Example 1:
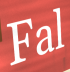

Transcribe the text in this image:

Fal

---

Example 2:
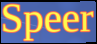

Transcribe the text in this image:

Speer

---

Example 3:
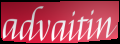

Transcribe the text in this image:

advaitin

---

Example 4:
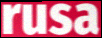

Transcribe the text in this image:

rusa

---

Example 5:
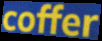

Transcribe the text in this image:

coffer